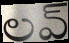
లవ్